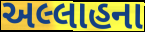
અલ્લાહના